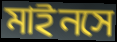
মাইনসে